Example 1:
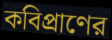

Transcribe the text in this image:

কবিপ্রাণের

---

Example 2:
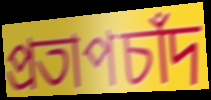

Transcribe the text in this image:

প্রতাপচাঁদ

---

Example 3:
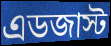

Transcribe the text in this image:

এডজাস্ট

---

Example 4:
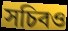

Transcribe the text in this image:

সচিবও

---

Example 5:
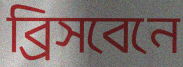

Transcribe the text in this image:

ব্রিসবেনে